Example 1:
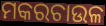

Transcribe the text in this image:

ମକରଚାଉଳ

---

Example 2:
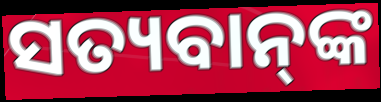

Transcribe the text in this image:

ସତ୍ୟବାନ୍‌ଙ୍କ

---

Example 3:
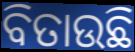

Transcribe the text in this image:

ବିତାଉଛି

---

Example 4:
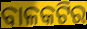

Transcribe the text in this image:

ବାଳକଟିର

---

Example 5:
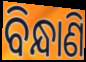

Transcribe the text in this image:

ବିନ୍ଧାଣି